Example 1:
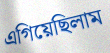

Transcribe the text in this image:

এগিয়েছিলাম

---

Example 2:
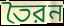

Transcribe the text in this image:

তৈরন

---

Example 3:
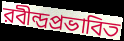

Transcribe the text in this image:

রবীন্দ্রপ্রভাবিত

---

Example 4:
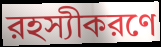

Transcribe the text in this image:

রহস্যীকরণে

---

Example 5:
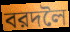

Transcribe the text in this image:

বরদলৈ